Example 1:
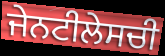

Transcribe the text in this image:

ਜੇਨਟੀਲੇਸਚੀ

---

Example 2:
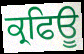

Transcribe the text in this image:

ਕ੍ਰਫਿਊ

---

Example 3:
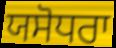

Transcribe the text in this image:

ਯਸੋਧਰਾ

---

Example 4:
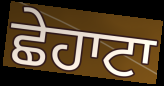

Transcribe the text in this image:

ਛੇਹਾਟਾ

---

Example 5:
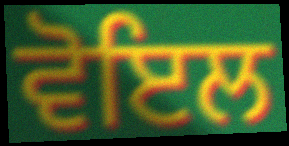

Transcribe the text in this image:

ਵੋਇਲ